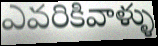
ఎవరికివాళ్ళు